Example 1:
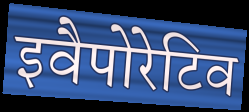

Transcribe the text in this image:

इवैपोरेटिव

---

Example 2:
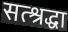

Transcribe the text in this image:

सत्श्रद्धा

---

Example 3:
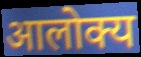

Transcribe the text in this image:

आलोक्य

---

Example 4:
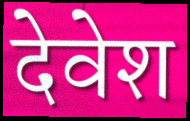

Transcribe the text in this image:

देवेश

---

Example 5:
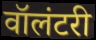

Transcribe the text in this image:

वॉलंटरी